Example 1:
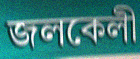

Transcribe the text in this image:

জলকেলী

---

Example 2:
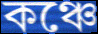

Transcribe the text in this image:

কঞ্চে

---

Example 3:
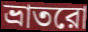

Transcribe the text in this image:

ভ্রাতরো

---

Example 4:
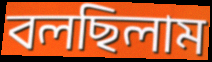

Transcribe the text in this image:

বলছিলাম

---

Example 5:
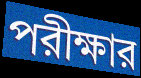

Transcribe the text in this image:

পরীক্ষার